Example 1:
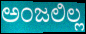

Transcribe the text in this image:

ಅಂಜಲಿಲ್ಲ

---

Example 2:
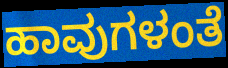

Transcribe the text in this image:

ಹಾವುಗಳಂತೆ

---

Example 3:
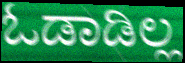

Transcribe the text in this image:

ಓಡಾಡಿಲ್ಲ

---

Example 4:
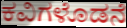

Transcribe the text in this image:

ಕವಿಗಳೊಡನೆ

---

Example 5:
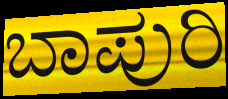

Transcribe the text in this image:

ಬಾಪುರಿ